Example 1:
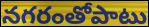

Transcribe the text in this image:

నగరంతోపాటు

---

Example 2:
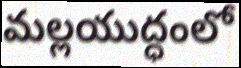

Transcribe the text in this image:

మల్లయుద్ధంలో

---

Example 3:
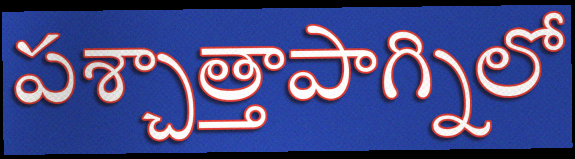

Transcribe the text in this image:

పశ్చాత్తాపాగ్నిలో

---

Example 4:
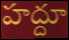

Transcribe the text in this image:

హద్దూ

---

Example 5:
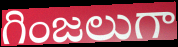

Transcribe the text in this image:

గింజలుగా